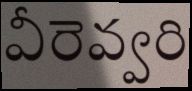
వీరెవ్వరి